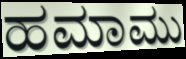
ಹಮಾಮು